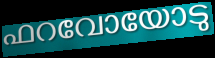
ഫറവോയോടു